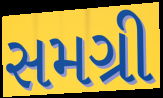
સમગ્રી